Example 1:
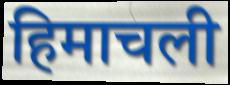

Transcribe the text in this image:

हिमाचली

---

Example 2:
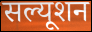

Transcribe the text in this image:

सल्यूशन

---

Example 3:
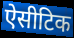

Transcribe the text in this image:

ऐसीटिक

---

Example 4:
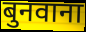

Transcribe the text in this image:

बुनवाना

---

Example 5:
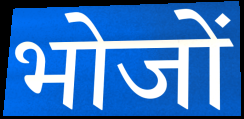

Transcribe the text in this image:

भोजों